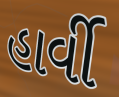
હાર્વી